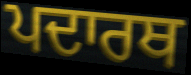
ਪਦਾਰਥ